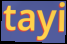
tayi